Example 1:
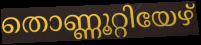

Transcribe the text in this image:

തൊണ്ണൂറ്റിയേഴ്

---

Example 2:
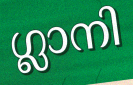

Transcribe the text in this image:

ഗ്ലാനി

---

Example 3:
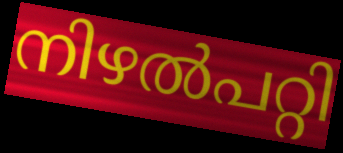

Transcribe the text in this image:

നിഴൽപറ്റി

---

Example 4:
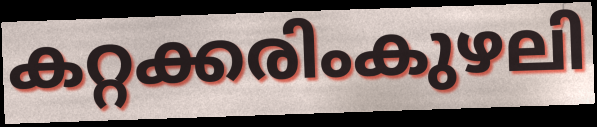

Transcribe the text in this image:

കറ്റക്കരിംകുഴലി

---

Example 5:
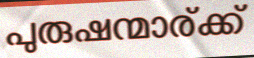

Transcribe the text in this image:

പുരുഷന്മാര്ക്ക്